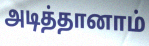
அடித்தானாம்